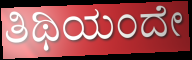
ತಿಥಿಯಂದೇ